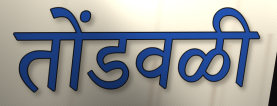
तोंडवळी